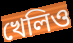
খেলিও